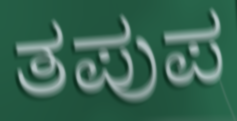
ತಪುಪ